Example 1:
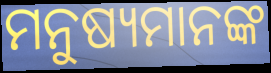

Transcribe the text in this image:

ମନୁଷ୍ୟମାନଙ୍କ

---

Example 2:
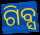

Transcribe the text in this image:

ଗିବ୍ସ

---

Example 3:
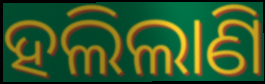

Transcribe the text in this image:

ହଲିଲାଣି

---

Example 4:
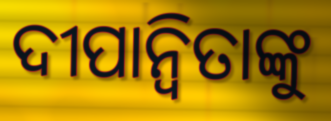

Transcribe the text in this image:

ଦୀପାନ୍ୱିତାଙ୍କୁ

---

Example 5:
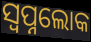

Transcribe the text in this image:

ସ୍ୱପ୍ନଲୋକ